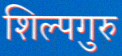
शिल्पगुरु